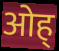
ओह्